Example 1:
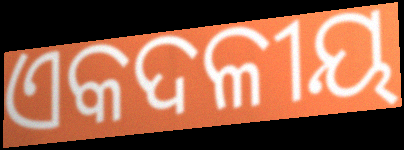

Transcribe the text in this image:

ଏକଦଳୀୟ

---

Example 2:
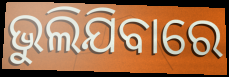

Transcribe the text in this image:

ଭୁଲିଯିବାରେ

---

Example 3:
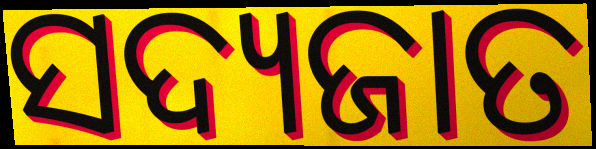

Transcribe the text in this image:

ସଦ୍ୟଜାତ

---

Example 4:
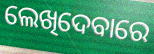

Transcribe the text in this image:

ଲେଖିଦେବାରେ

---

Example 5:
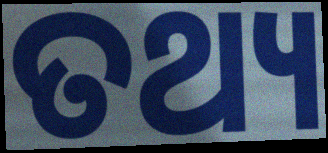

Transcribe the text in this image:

ତଥ୍ୟ